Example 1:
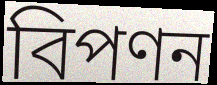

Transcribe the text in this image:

বিপণন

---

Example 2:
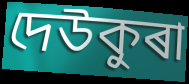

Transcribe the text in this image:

দেউকুৰা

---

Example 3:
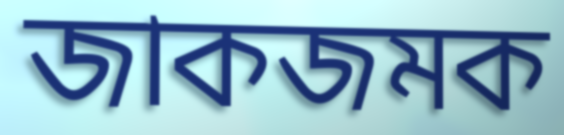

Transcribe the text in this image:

জাকজমক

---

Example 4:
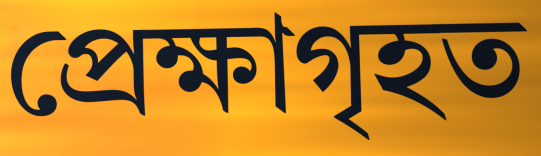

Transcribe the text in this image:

প্ৰেক্ষাগৃহত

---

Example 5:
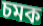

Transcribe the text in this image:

চমক